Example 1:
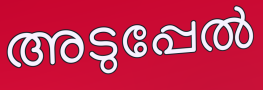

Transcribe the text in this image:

അടുപ്പേൽ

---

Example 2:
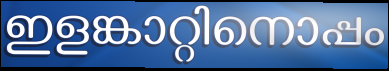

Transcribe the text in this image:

ഇളങ്കാറ്റിനൊപ്പം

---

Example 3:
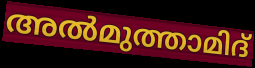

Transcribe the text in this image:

അൽമുത്താമിദ്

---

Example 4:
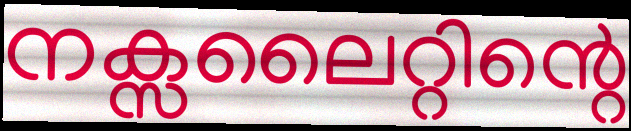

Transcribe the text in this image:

നക്സലൈറ്റിന്റെ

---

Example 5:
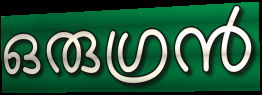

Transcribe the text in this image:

ഒരുഗ്രൻ